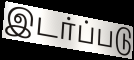
இடர்ப்படு